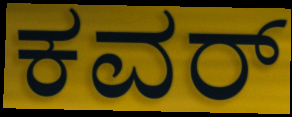
ಕವರ್